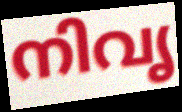
നിവൃ